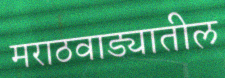
मराठवाड्यातील